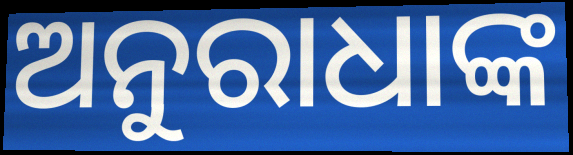
ଅନୁରାଧାଙ୍କ